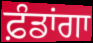
ਫ਼ੰਡਾਂਗਾ